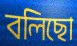
বলিছো